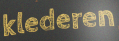
klederen